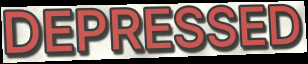
DEPRESSED